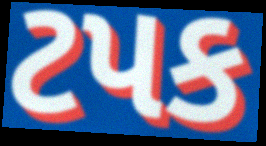
ટપક